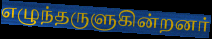
எழுந்தருளுகின்றனர்